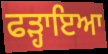
ਫੜ੍ਹਾਇਆ